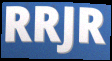
RRJR